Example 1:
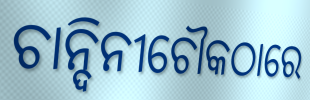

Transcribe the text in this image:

ଚାନ୍ଦିନୀଚୌକଠାରେ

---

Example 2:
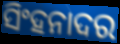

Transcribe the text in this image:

ସିଂହନାଦର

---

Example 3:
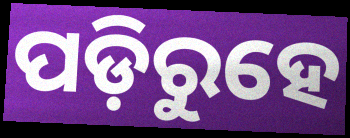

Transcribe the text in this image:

ପଡ଼ିରୁହେ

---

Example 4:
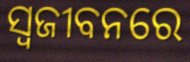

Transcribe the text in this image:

ସ୍ଵଜୀବନରେ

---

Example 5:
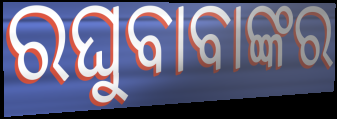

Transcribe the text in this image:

ରଘୁବାବାଙ୍କର